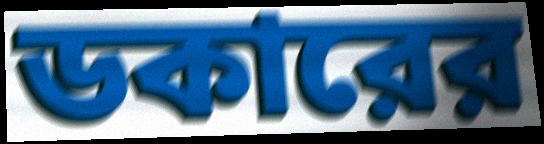
ডকারের